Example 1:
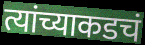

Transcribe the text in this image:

त्यांच्याकडचं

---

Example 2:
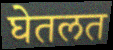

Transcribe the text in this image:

घेतलत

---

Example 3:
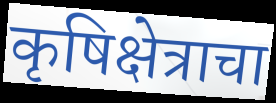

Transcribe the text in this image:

कृषिक्षेत्राचा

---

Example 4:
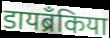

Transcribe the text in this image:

डायब्रँकिया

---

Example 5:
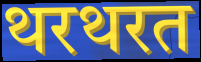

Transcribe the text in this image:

थरथरत